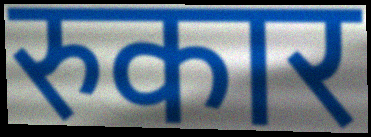
रुकार